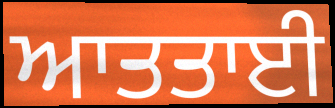
ਆਤਤਾਈ